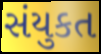
સંયુકત